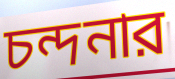
চন্দনার